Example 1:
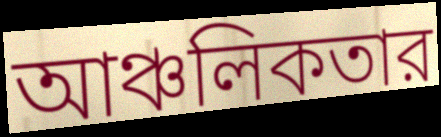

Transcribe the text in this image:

আঞ্চলিকতার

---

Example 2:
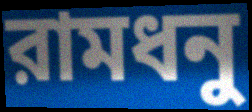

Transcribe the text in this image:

রামধনু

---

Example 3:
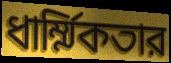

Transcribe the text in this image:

ধার্ম্মিকতার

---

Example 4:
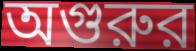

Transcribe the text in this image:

অগুরুর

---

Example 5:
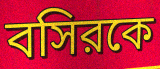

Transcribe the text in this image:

বসিরকে